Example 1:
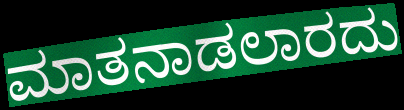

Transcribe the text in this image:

ಮಾತನಾಡಲಾರದು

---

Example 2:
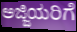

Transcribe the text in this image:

ಅಜ್ಜಿಯರಿಗೆ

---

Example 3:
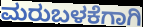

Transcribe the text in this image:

ಮರುಬಳಕೆಗಾಗಿ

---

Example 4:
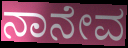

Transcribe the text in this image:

ನಾನೇವ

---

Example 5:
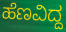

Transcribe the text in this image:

ಹೆಣವಿದ್ದ